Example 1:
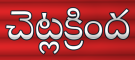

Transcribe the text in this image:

చెట్లక్రింద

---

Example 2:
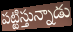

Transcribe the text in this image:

పట్టిస్తున్నాడు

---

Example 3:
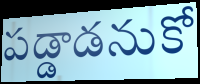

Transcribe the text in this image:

పడ్డాడనుకో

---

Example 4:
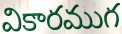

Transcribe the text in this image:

వికారముగ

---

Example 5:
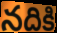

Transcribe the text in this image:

నదికి